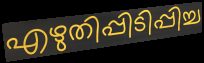
എഴുതിപ്പിടിപ്പിച്ച